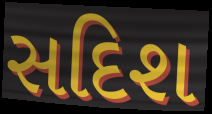
સદિશ